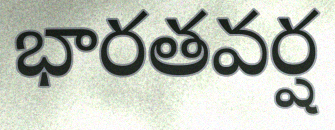
భారతవర్ష